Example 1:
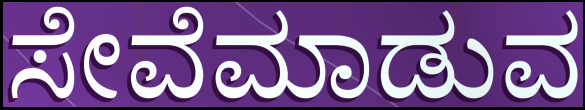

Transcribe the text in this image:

ಸೇವೆಮಾಡುವ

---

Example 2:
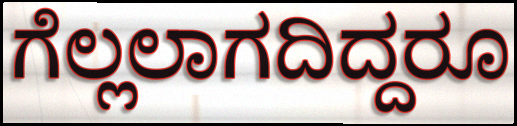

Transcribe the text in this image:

ಗೆಲ್ಲಲಾಗದಿದ್ದರೂ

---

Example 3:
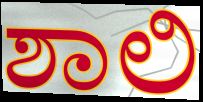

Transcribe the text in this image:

ಶಾಲಿ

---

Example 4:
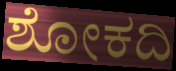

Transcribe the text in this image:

ಶೋಕದಿ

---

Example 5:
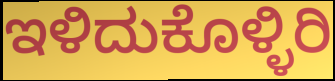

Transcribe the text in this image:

ಇಳಿದುಕೊಳ್ಳಿರಿ